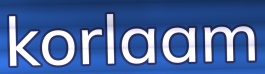
korlaam